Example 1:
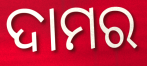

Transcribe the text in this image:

ଦାମର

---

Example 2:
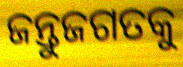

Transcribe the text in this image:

ଜନ୍ତୁଜଗତକୁ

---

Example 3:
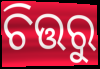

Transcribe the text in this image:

ଚିତ୍ତରୁ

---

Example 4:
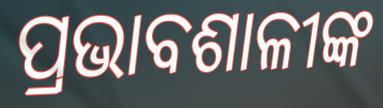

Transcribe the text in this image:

ପ୍ରଭାବଶାଳୀଙ୍କ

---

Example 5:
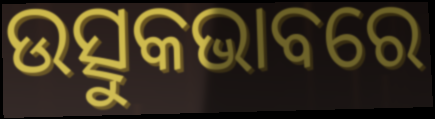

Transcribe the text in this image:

ଉତ୍ସୁକଭାବରେ